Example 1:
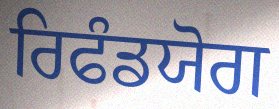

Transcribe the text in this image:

ਰਿਫੰਡਯੋਗ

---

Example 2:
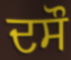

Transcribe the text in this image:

ਦਸੌ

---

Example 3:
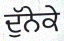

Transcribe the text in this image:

ਦੁੱਨੇਕੇ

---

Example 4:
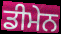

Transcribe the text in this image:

ਡੀਮੇਨ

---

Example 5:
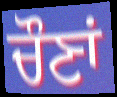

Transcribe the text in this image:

ਚੌਣਾਂ